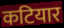
कटियार